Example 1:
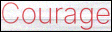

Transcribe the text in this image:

Courage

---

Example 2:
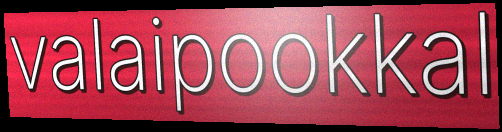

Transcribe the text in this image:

valaipookkal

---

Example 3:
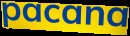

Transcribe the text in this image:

pacana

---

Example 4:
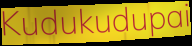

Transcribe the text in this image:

Kudukudupai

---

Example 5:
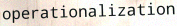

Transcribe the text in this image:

operationalization